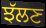
ਝੱਲਣ